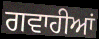
ਗਵਾਹੀਆਂ